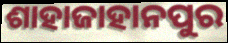
ଶାହାଜାହାନପୁର